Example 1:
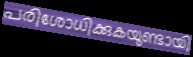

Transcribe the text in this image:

പരിശോധിക്കുകയുണ്ടായി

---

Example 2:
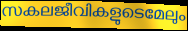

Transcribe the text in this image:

സകലജീവികളുടെമേലും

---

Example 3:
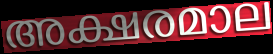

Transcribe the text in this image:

അക്ഷരമാല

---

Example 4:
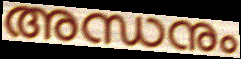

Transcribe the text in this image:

അന്ധനും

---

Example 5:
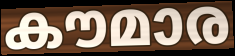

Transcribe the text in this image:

കൗമാര